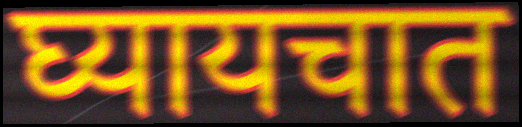
घ्यायचात